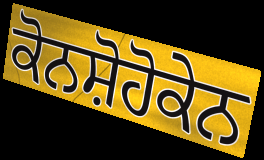
ਕੋਨਸ਼ੋਹੋਕੇਨ